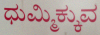
ಧುಮ್ಮಿಕ್ಕುವ